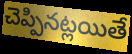
చెప్పినట్లయితే